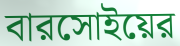
বারসোইয়ের